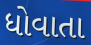
ધોવાતા